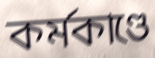
কর্মকাণ্ডে